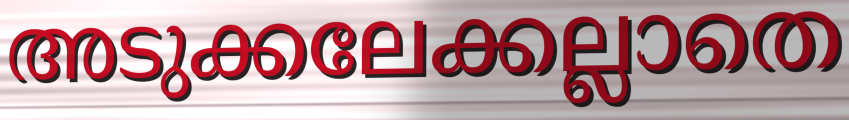
അടുക്കലേക്കല്ലാതെ